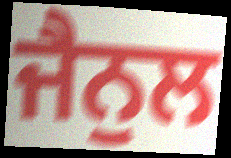
ਜੈਨੁਲ